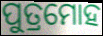
ପୁତ୍ରମୋହ